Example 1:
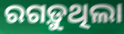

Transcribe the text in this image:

ରଗଡ଼ୁଥିଲା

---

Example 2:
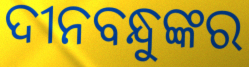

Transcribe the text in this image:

ଦୀନବନ୍ଧୁଙ୍କର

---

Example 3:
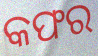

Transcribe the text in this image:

କଫର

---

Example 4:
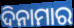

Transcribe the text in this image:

ଦିନାମାର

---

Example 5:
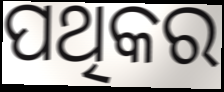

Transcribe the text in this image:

ପଥିକର